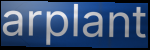
arplant